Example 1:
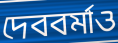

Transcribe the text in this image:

দেববর্মাও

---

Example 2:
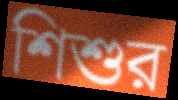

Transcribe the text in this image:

শিশুর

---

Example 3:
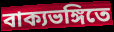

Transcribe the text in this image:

বাক্যভঙ্গিতে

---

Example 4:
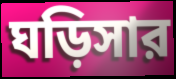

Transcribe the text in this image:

ঘড়িসার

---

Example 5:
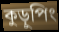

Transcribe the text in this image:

কুড়ুপিং